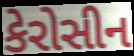
કેરોસીન